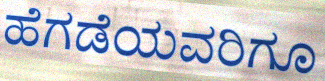
ಹೆಗಡೆಯವರಿಗೂ